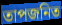
তাপজনিত